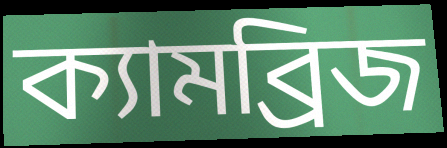
ক্যামব্রিজ